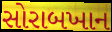
સોરાબખાન